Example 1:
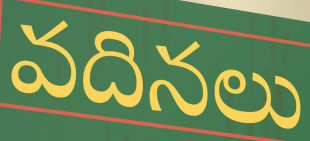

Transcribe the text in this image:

వదినలు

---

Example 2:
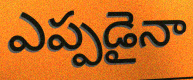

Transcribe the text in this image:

ఎప్పడైనా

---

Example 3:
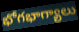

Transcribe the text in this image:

భోగభాగ్యాలు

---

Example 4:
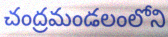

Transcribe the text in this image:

చంద్రమండలంలోని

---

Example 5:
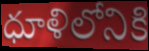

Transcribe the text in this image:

ధూళిలోనికి